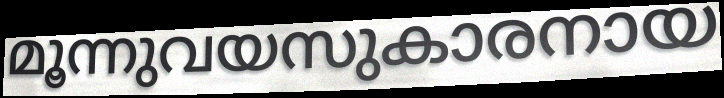
മൂന്നുവയസുകാരനായ